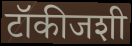
टॉकीजशी